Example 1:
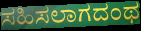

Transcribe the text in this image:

ಸಹಿಸಲಾಗದಂಥ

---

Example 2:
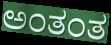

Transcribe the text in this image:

ಅಂತಂತ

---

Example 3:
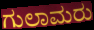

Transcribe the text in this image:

ಗುಲಾಮರು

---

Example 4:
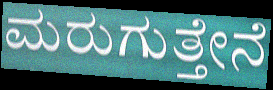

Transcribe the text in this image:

ಮರುಗುತ್ತೇನೆ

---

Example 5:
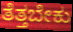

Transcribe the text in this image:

ತೆತ್ತಬೇಕು